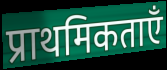
प्राथमिकताएँ